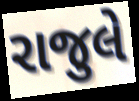
રાજુલે